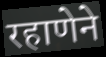
रहाणेने